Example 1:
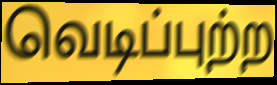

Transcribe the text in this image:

வெடிப்புற்ற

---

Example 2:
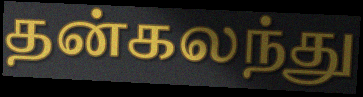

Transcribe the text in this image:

தன்கலந்து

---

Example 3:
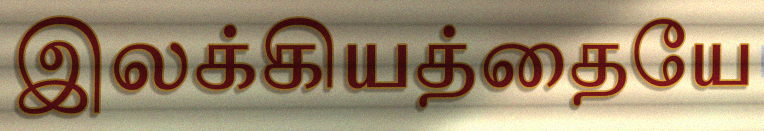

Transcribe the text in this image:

இலக்கியத்தையே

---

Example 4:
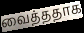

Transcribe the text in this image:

வைத்ததாக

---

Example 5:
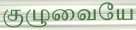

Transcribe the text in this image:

குழுவையே